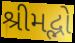
શ્રીમદ્ભો